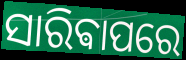
ସାରିଵାପରେ